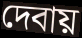
দেবায়